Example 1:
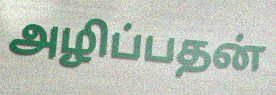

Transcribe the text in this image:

அழிப்பதன்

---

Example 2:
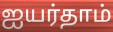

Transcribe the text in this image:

ஐயர்தாம்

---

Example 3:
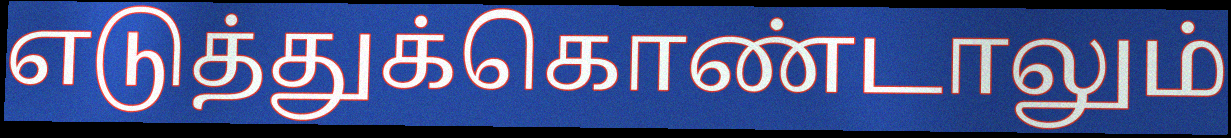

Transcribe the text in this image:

எடுத்துக்கொண்டாலும்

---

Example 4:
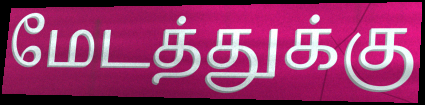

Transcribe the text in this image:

மேடத்துக்கு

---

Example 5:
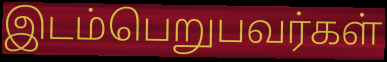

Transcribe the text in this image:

இடம்பெறுபவர்கள்